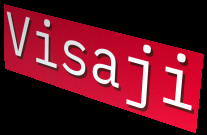
Visaji